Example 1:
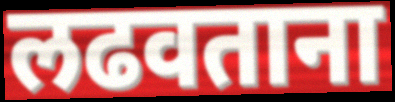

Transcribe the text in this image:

लढवताना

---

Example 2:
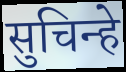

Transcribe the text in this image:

सुचिन्हे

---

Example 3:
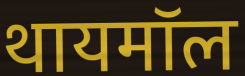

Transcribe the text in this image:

थायमॉल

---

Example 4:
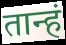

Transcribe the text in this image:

तान्हं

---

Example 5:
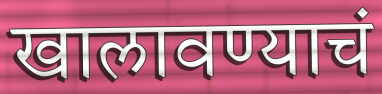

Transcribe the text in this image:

खालावण्याचं